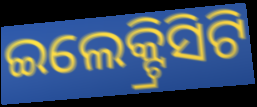
ଇଲେକ୍ଟ୍ରିସିଟି